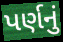
પર્ણનું